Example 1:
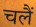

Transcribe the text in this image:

चलैं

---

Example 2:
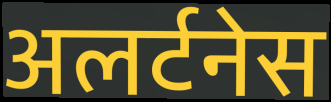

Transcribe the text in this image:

अलर्टनेस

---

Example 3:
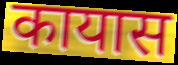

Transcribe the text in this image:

कायास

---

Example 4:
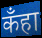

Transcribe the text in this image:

कँहा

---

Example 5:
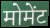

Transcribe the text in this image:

मोमेंट